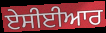
ਏਸੀਈਆਰ